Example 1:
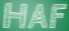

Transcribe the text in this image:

HAF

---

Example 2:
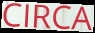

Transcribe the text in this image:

CIRCA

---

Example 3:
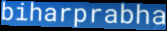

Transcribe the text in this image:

biharprabha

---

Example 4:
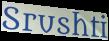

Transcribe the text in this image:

Srushti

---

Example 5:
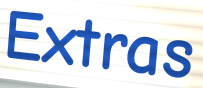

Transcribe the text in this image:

Extras